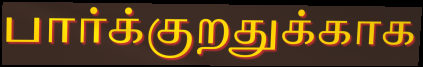
பார்க்குறதுக்காக